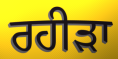
ਰਹੀੜਾ